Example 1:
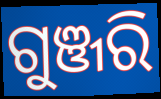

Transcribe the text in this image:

ଗୁଞ୍ଜରି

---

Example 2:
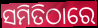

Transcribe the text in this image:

ସମିତିଠାରେ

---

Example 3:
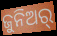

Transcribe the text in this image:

ଜୁନିଅର୍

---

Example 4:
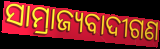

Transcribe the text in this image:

ସାମ୍ରାଜ୍ୟବାଦୀଗଣ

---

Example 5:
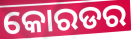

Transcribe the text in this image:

କୋରଡର